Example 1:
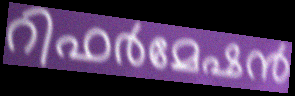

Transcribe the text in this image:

റിഫർമേഷൻ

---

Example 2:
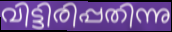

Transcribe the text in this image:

വിട്ടിരിപ്പതിന്നു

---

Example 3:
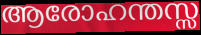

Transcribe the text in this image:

ആരോഹന്തസ്സ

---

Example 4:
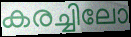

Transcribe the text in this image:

കരച്ചിലോ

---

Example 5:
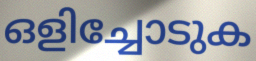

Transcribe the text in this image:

ഒളിച്ചോടുക